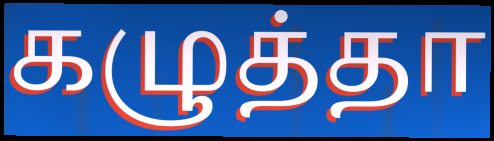
கழுத்தா